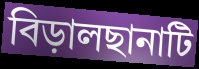
বিড়ালছানাটি